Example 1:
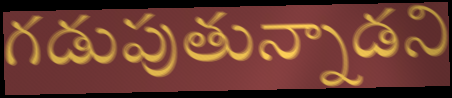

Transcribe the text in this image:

గడుపుతున్నాడని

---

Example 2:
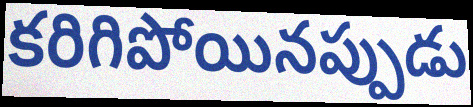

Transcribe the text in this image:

కరిగిపోయినప్పుడు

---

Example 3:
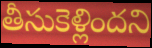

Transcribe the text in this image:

తీసుకెళ్లిందని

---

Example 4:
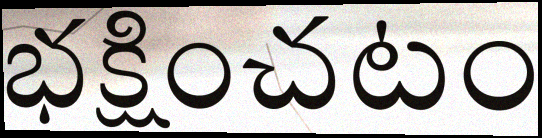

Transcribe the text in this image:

భక్షించటం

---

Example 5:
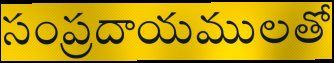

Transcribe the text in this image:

సంప్రదాయములతో